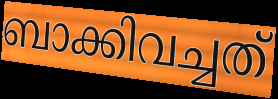
ബാക്കിവച്ചത്